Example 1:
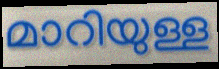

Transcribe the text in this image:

മാറിയുള്ള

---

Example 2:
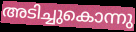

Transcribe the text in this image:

അടിച്ചുകൊന്നു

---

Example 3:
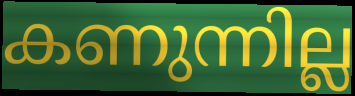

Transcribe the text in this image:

കണുന്നില്ല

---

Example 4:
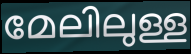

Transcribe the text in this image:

മേലിലുള്ള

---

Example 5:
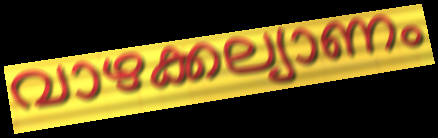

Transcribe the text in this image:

വാഴക്കല്യാണം